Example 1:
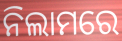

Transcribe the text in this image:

ନିଲାମରେ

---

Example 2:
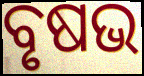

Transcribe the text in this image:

ବୃଷଭ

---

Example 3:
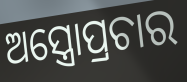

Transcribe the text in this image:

ଅସ୍ତ୍ରୋପ୍ରଚାର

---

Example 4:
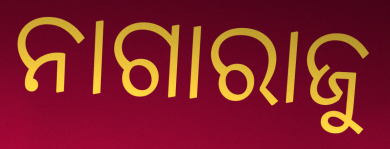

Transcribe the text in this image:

ନାଗାରାଜୁ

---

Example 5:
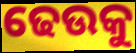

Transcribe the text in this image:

ଢେଉକୁ